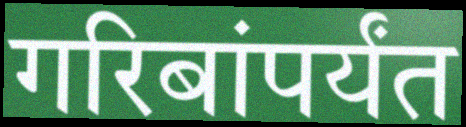
गरिबांपर्यंत